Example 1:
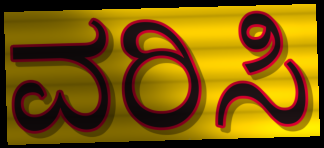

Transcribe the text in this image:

ವರಿಸಿ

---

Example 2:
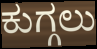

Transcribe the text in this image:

ಕುಗ್ಗಲು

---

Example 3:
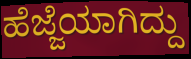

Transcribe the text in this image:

ಹೆಜ್ಜೆಯಾಗಿದ್ದು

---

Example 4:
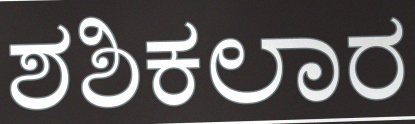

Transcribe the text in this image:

ಶಶಿಕಲಾರ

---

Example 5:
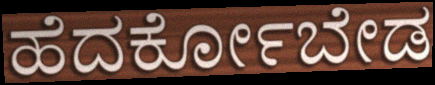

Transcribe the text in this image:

ಹೆದರ್ಕೋಬೇಡ